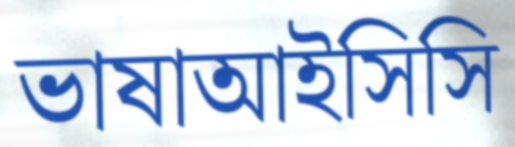
ভাষাআইসিসি